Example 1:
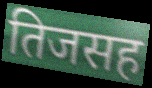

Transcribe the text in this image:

तिजसह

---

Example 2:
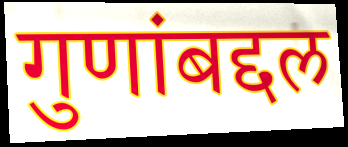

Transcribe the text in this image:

गुणांबद्दल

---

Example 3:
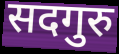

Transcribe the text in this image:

सदगुरु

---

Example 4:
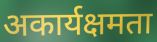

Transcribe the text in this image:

अकार्यक्षमता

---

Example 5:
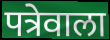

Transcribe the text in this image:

पत्रेवाला